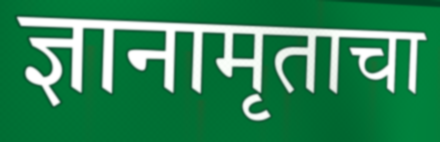
ज्ञानामृताचा